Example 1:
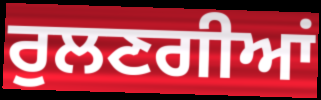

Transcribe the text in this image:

ਰੁਲਣਗੀਆਂ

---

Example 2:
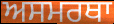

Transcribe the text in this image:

ਅਸਮਰਥਾ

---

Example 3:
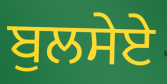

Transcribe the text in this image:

ਬੁਲਸੇਏ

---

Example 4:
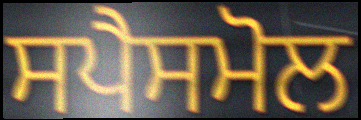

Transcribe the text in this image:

ਸਪੈਸਮੋਲ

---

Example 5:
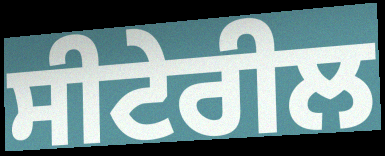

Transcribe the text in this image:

ਸੀਟੇਰੀਲ